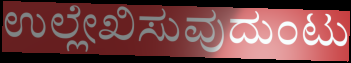
ಉಲ್ಲೇಖಿಸುವುದುಂಟು